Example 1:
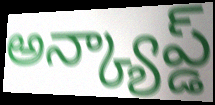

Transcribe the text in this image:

అన్క్యాప్డ్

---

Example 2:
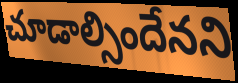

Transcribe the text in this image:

చూడాల్సిందేనని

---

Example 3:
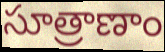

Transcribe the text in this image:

సూత్రాణాం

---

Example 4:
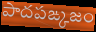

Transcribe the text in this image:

పాదపఙ్కజం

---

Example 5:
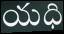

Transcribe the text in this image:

యధి